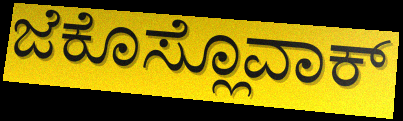
ಜೆಕೊಸ್ಲೊವಾಕ್